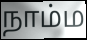
நாம்ம